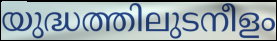
യുദ്ധത്തിലുടനീളം